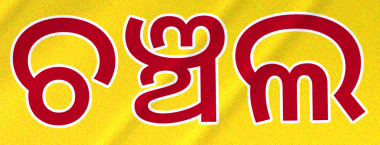
ଚଞ୍ଚଲ